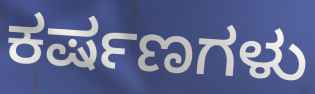
ಕರ್ಷಣಗಳು